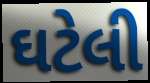
ઘટેલી